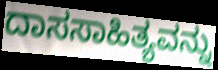
ದಾಸಸಾಹಿತ್ಯವನ್ನು